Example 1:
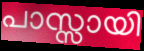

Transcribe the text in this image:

പാസ്സായി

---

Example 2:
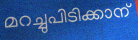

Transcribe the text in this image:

മറച്ചുപിടിക്കാന്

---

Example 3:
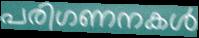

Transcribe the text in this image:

പരിഗണനകൾ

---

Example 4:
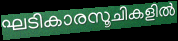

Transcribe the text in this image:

ഘടികാരസൂചികളിൽ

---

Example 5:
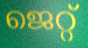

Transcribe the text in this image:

ജെറ്റ്